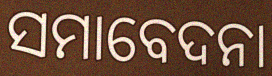
ସମାବେଦନା